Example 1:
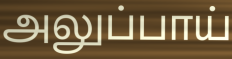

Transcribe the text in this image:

அலுப்பாய்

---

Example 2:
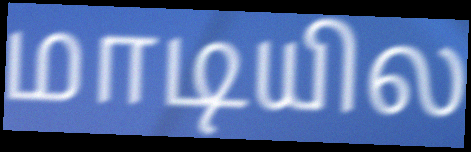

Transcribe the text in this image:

மாடியில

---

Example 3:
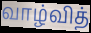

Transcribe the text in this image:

வாழ்வித்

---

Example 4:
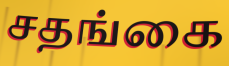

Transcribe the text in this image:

சதங்கை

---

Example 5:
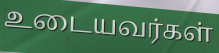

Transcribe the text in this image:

உடையவர்கள்